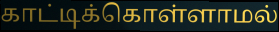
காட்டிக்கொள்ளாமல்